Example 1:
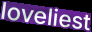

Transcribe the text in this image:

loveliest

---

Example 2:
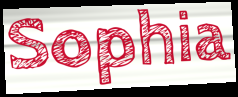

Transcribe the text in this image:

Sophia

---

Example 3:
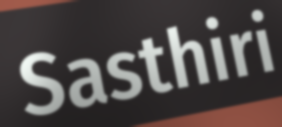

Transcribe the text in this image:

Sasthiri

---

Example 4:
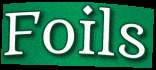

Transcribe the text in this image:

Foils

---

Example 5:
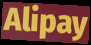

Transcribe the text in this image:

Alipay